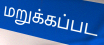
மறுக்கப்பட